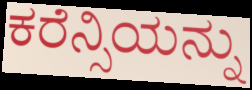
ಕರೆನ್ಸಿಯನ್ನು